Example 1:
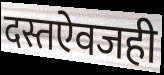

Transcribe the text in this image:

दस्तऐवजही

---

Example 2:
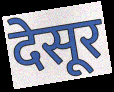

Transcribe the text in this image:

देसूर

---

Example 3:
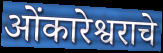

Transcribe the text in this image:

ओंकारेश्वराचे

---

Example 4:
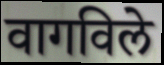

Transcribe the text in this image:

वागविले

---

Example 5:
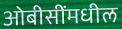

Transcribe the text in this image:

ओबीसींमधील